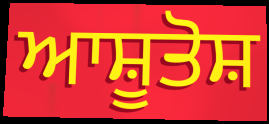
ਆਸ਼ੂਤੋਸ਼